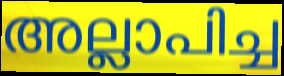
അല്ലാപിച്ച